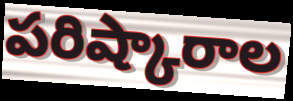
పరిష్కారాల